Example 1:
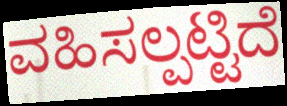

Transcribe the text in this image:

ವಹಿಸಲ್ಪಟ್ಟಿದೆ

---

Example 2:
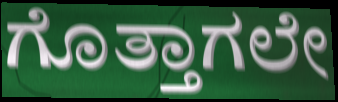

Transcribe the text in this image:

ಗೊತ್ತಾಗಲೇ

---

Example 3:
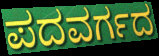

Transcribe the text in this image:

ಪದವರ್ಗದ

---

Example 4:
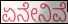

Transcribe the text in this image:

ಏನೇನಿವೆ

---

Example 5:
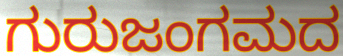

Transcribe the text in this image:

ಗುರುಜಂಗಮದ